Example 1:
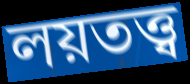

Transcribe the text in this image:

লয়তত্ত্ব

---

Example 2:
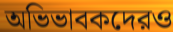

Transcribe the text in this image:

অভিভাবকদেরও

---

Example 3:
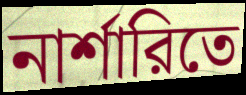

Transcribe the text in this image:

নার্শারিতে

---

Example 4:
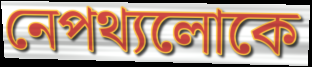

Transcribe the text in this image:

নেপথ্যলোকে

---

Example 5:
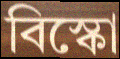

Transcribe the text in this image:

বিস্কো